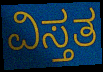
ವಿಸ್ತತ